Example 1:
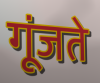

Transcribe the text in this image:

गूंजते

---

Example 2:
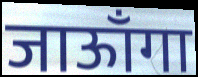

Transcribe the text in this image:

जाऊाँगा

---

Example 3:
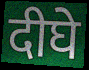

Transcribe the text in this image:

दीघे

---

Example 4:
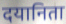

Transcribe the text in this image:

दयानिता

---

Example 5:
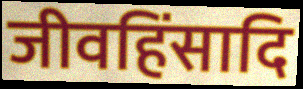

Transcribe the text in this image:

जीवहिंसादि